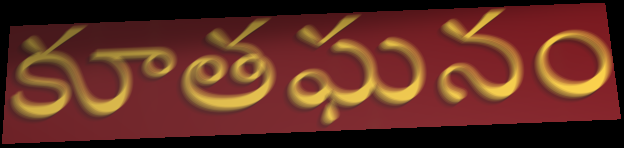
కూతఘనం